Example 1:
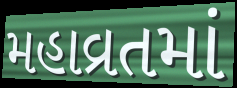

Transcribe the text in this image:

મહાવ્રતમાં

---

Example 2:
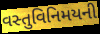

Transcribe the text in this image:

વસ્તુવિનિમયની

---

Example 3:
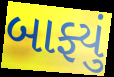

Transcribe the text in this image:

બાફ્યું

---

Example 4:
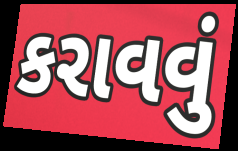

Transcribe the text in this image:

કરાવવું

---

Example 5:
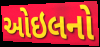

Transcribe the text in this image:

ઓઇલનો